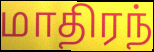
மாதிரந்